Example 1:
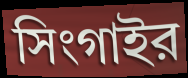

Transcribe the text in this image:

সিংগাইর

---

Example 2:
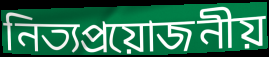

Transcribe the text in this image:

নিত্যপ্রয়োজনীয়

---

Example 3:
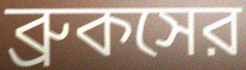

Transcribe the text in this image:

ব্রুকসের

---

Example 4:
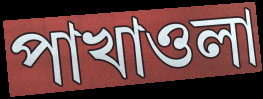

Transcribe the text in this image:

পাখাওলা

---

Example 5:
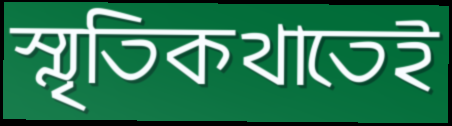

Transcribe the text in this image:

স্মৃতিকথাতেই